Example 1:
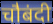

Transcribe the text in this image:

चौबंदी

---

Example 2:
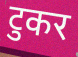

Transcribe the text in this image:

टुकर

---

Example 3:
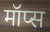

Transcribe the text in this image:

मॉप्स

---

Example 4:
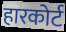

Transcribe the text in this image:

हारकोर्ट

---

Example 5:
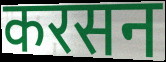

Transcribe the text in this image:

करसन